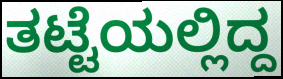
ತಟ್ಟೆಯಲ್ಲಿದ್ದ